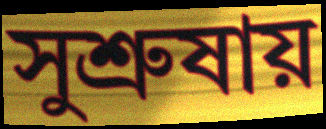
সুশ্রুষায়